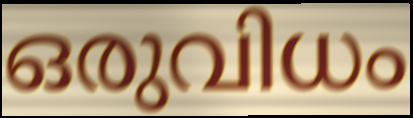
ഒരുവിധം